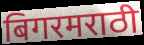
बिगरमराठी